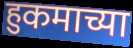
हुकमाच्या